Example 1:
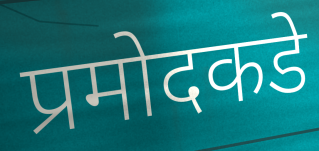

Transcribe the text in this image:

प्रमोदकडे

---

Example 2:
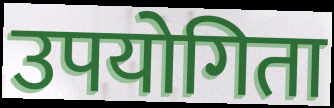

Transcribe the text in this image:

उपयोगिता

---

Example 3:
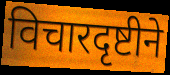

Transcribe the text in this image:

विचारदृष्टीने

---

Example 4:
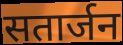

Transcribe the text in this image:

सतार्जन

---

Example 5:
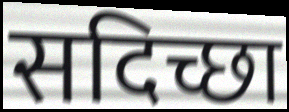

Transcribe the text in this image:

सदिच्छा